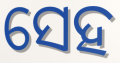
ସେହ